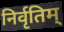
निर्वृतिम्